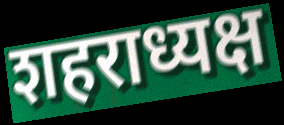
शहराध्यक्ष